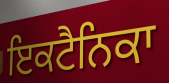
ਇਕਟੈਨਿਕਾ